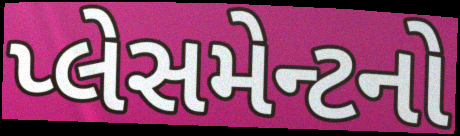
પ્લેસમેન્ટનો